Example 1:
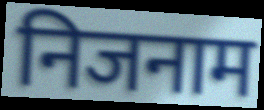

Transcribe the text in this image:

निजनाम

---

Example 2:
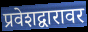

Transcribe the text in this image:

प्रवेशद्वारावर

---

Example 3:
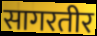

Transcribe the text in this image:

सागरतीर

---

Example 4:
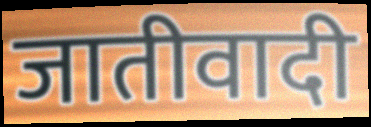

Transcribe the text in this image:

जातीवादी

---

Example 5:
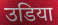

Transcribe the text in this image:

उडिया